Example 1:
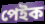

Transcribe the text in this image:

পেইক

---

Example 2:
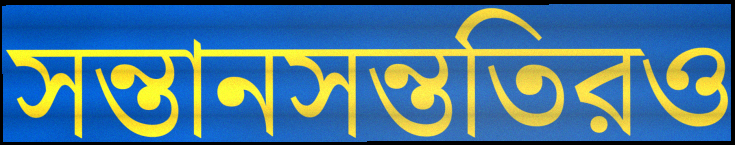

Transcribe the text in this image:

সন্তানসন্ততিরও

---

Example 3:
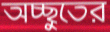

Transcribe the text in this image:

অচ্ছুতের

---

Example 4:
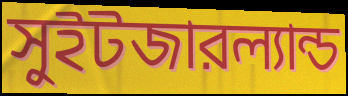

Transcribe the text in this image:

সুইটজারল্যান্ড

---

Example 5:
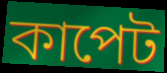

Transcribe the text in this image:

কাপেট